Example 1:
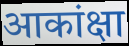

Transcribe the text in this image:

आकांक्षा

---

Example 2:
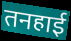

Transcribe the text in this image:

तनहाई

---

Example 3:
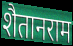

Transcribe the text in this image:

शैतानराम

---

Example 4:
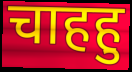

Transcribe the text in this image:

चाहहु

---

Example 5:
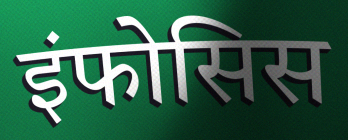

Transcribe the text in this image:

इंफोसिस